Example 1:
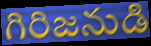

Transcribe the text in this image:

గిరిజనుడి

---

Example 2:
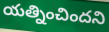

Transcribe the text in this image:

యత్నించిందని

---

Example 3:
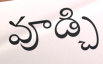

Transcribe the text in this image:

వూడ్చి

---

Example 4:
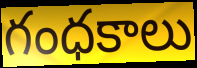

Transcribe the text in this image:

గంధకాలు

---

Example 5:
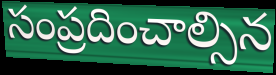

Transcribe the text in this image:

సంప్రదించాల్సిన